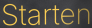
Starten